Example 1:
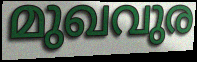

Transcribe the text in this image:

മുഖവുര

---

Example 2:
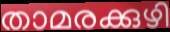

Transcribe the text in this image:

താമരക്കുഴി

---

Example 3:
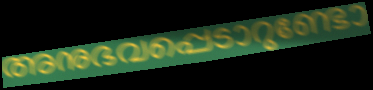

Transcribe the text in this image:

അനുഭവപ്പെടാറുണ്ടോ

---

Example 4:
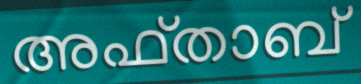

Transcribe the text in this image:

അഫ്താബ്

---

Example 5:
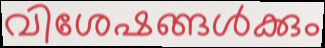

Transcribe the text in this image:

വിശേഷങ്ങൾക്കും